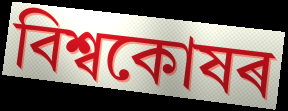
বিশ্বকোষৰ